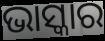
ଭାସ୍କାର